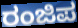
ರಂಜಿಪ